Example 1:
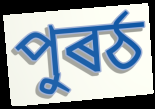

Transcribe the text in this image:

পুৰঠ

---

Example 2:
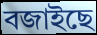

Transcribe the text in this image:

বজাইছে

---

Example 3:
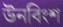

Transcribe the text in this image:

উনবিংশ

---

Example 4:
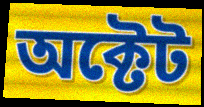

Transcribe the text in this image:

অক্টেট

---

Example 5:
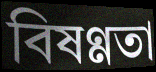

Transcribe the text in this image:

বিষণ্ণতা